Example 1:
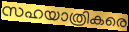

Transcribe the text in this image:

സഹയാത്രികരെ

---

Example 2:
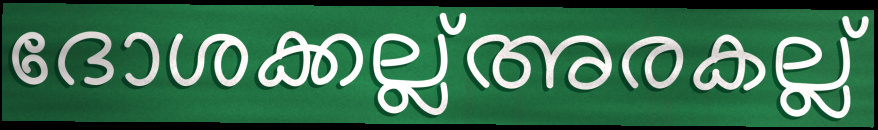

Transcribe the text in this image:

ദോശക്കല്ല്അരകല്ല്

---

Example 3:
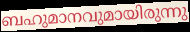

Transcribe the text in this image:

ബഹുമാനവുമായിരുന്നു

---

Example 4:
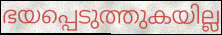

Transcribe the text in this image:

ഭയപ്പെടുത്തുകയില്ല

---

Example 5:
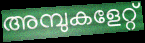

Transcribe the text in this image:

അമ്പുകളേറ്റ്